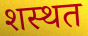
शस्थत